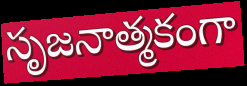
సృజనాత్మకంగా